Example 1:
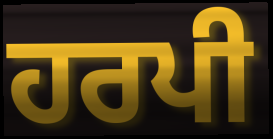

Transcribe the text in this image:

ਹਰਪੀ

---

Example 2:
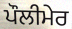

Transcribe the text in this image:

ਪੌਲੀਮੇਰ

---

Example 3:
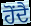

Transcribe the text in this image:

ਹੋਂਦੈ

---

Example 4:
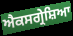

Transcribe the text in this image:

ਐਕਸਗ੍ਰੇਸ਼ਿਆ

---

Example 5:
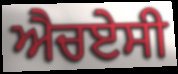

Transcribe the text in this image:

ਐਚਏਸੀ